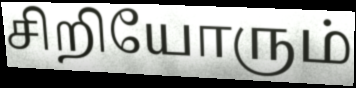
சிறியோரும்